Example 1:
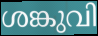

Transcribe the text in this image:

ശങ്കുവി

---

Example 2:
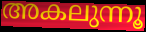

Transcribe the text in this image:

അകലുന്നൂ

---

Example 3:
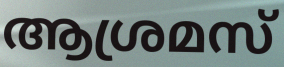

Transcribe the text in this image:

ആശ്രമസ്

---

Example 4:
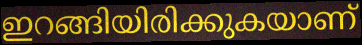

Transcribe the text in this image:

ഇറങ്ങിയിരിക്കുകയാണ്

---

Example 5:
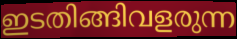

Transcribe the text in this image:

ഇടതിങ്ങിവളരുന്ന